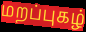
மறப்புகழ்